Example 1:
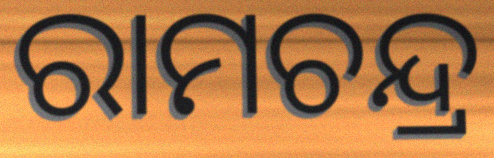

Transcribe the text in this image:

ରାମଚନ୍ଦ୍ର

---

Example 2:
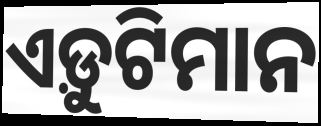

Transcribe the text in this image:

ଏଡ଼ୁଟିମାନ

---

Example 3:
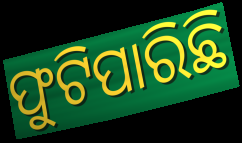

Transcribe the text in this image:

ଫୁଟିପାରିଛି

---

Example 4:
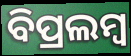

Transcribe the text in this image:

ବିପ୍ରଲମ୍ବ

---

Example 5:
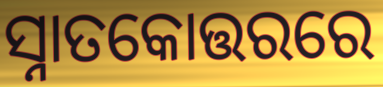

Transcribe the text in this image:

ସ୍ନାତକୋତ୍ତରରେ